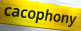
cacophony